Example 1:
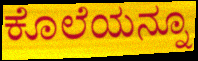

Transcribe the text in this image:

ಕೊಲೆಯನ್ನೂ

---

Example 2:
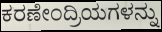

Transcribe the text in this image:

ಕರಣೇಂದ್ರಿಯಗಳನ್ನು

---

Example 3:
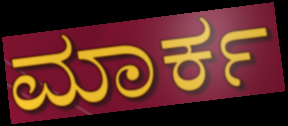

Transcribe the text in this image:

ಮಾರ್ಕ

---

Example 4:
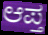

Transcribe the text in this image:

ಆಪ್ತ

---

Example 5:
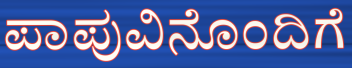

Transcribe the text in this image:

ಪಾಪುವಿನೊಂದಿಗೆ